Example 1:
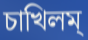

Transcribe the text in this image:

চাখিলম্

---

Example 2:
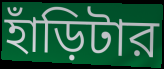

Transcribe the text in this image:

হাঁড়িটার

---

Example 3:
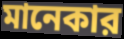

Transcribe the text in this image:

মানেকার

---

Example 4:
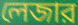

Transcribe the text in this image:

লেজার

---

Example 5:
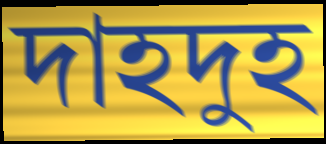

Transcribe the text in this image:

দাহদুহ